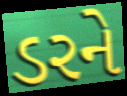
ડરને